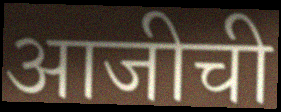
आजीची